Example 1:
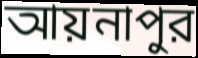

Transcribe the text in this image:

আয়নাপুর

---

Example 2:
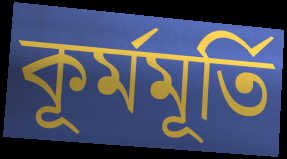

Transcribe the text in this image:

কূর্মমূর্তি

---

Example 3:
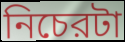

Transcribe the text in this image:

নিচেরটা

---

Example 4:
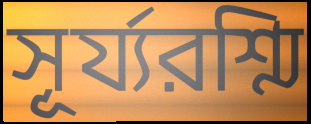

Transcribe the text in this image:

সূর্য্যরশ্মি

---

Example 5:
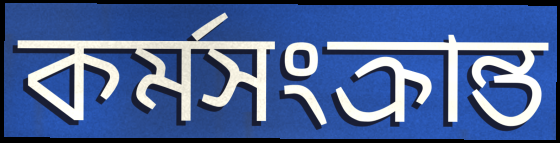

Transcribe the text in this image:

কর্মসংক্রান্ত